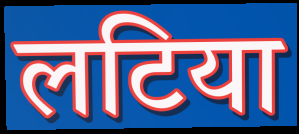
लटिया